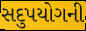
સદુપયોગની